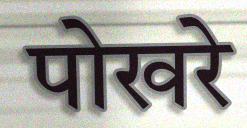
पोखरे